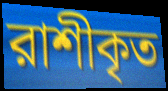
রাশীকৃত